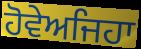
ਹੋਵੇਅਜਿਹਾ